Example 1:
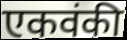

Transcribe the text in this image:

एकवंकी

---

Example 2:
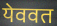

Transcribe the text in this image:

येववत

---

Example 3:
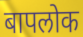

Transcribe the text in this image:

बापलोक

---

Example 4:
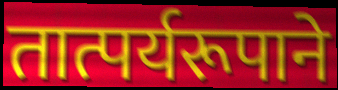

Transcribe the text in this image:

तात्पर्यरूपाने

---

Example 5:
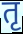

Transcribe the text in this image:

तृ